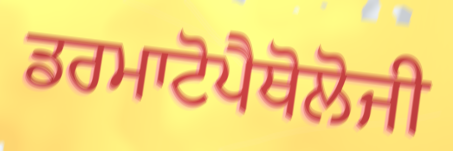
ਡਰਮਾਟੋਪੈਥੋਲੋਜੀ